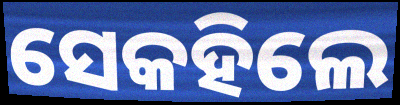
ସେକହିଲେ